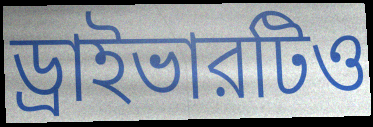
ড্রাইভারটিও